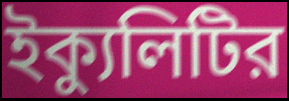
ইক্যুলিটির